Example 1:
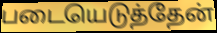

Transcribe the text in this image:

படையெடுத்தேன்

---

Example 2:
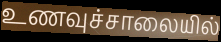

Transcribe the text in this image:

உணவுச்சாலையில்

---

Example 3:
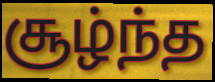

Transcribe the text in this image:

சூழ்ந்த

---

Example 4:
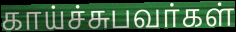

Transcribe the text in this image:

காய்ச்சுபவர்கள்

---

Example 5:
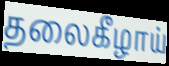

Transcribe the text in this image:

தலைகீழாய்